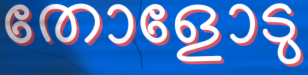
തോളോടു